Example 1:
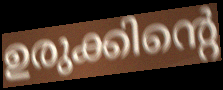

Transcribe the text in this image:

ഉരുക്കിന്റെ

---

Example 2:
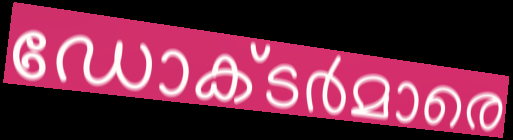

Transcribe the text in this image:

ഡോക്ടർമാരെ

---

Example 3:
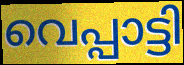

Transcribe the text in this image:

വെപ്പാട്ടി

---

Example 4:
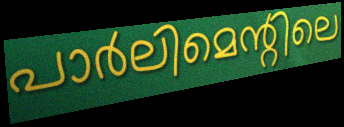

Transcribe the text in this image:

പാർലിമെന്റിലെ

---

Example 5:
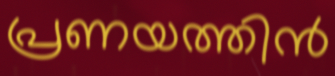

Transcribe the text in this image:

പ്രണയത്തിൻ